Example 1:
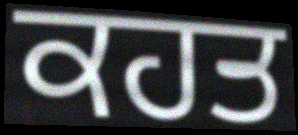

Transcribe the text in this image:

ਕਹਤ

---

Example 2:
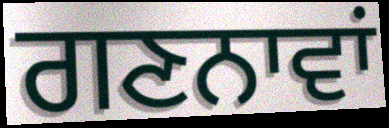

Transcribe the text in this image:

ਗਣਨਾਵਾਂ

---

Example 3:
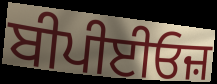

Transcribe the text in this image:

ਬੀਪੀਈਓਜ਼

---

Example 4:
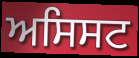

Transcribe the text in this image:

ਅਸਿਸਟ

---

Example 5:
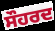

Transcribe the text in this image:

ਸੌਹਰਦ